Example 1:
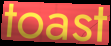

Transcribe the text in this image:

toast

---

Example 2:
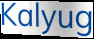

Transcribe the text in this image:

Kalyug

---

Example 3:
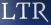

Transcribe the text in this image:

LTR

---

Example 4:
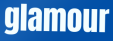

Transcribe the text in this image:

glamour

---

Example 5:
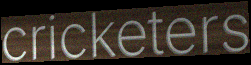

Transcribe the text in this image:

cricketers